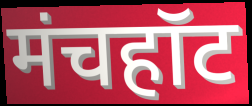
मंचहॉट